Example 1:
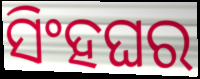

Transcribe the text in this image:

ସିଂହଘର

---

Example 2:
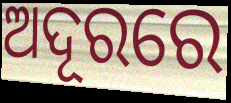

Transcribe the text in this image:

ଅଦୂରରେ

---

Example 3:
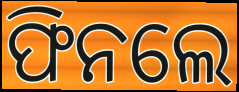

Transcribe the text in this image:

ଫିନଲେ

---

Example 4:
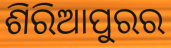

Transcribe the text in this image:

ଶିରିଆପୁରର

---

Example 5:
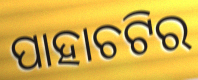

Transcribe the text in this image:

ପାହାଚଟିର